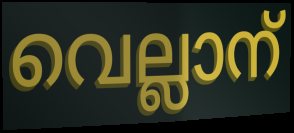
വെല്ലാന്